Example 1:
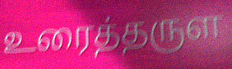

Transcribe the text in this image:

உரைத்தருள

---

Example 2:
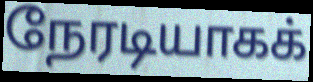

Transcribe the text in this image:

நேரடியாகக்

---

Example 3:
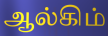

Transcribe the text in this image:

ஆல்கிம்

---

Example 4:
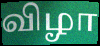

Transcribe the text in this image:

விழா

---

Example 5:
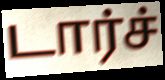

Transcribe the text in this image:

டார்ச்